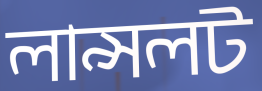
লান্সলট